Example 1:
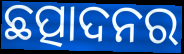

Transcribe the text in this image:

ଛତ୍ପାଦନର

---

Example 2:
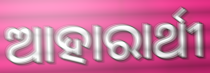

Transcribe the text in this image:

ଆହାରାର୍ଥୀ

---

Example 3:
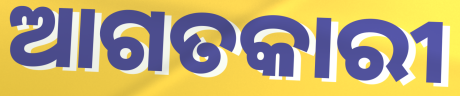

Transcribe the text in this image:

ଆଗତକାରୀ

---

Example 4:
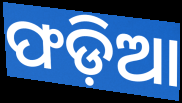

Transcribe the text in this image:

ଫଡ଼ିଆ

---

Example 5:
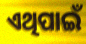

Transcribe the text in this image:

ଏଥିପାଇଁ